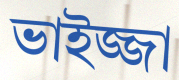
ভাইজ্জা